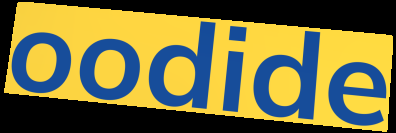
oodide